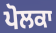
ਪੋਲਕਾ